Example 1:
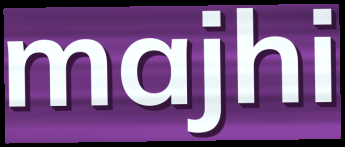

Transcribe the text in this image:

majhi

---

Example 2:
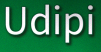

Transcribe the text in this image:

Udipi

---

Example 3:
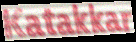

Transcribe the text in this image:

Katakkar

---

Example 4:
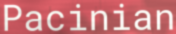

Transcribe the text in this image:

Pacinian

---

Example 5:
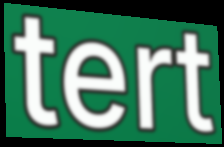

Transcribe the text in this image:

tert